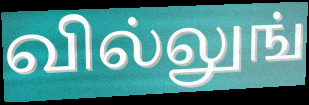
வில்லுங்